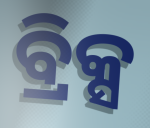
ବ୍ରିକ୍ସ